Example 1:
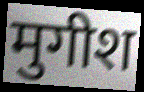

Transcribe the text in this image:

मुगीश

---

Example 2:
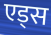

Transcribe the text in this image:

एड्स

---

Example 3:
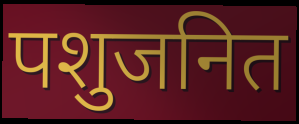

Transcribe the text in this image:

पशुजनित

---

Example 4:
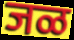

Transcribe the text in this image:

जळ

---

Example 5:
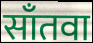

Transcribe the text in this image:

साँतवा